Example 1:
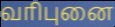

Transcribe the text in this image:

வரிபுனை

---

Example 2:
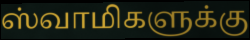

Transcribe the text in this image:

ஸ்வாமிகளுக்கு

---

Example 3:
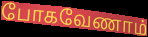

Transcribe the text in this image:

போகவேணாம்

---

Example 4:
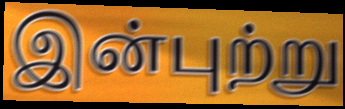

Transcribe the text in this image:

இன்புற்று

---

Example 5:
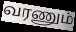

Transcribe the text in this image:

வரணும்